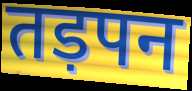
तड़पन